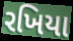
રખિયા